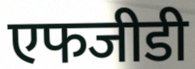
एफजीडी